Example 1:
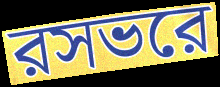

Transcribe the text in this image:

রসভরে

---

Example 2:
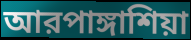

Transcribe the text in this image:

আরপাঙ্গাশিয়া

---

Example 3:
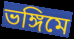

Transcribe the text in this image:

ভঙ্গিমে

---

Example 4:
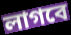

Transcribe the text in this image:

লাগবে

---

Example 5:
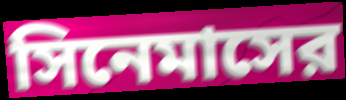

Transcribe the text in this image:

সিনেমাসের